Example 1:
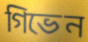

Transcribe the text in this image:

গিভেন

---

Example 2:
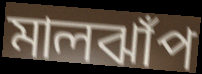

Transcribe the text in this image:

মালঝাঁপ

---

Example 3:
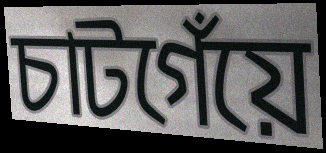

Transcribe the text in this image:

চাটগেঁয়ে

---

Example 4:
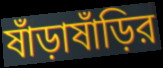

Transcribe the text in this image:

ষাঁড়াষাঁড়ির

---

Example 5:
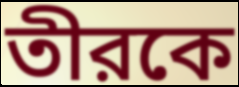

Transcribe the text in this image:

তীরকে